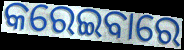
କରେଇବାରେ